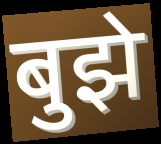
बुझे